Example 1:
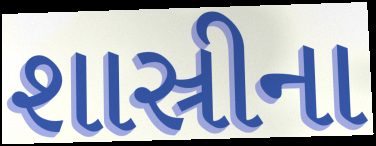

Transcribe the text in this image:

શાસ્રીના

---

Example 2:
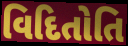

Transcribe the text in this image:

વિદિતોતિ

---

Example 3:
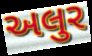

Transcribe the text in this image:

અલુર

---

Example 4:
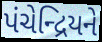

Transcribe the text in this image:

પંચેન્દ્રિયને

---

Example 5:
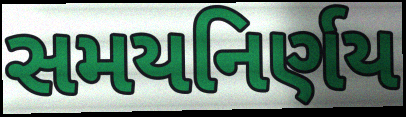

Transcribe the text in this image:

સમયનિર્ણય